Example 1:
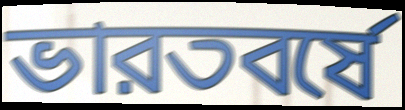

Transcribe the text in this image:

ভারতবর্ষে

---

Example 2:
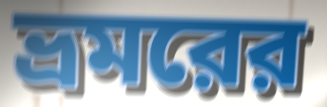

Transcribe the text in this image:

ভ্রমরের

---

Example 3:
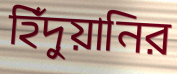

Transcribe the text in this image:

হিঁদুয়ানির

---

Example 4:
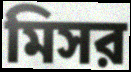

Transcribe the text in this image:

মিসর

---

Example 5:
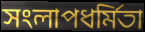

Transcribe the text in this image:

সংলাপধর্মিতা